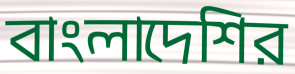
বাংলাদেশির